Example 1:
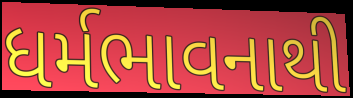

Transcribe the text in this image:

ધર્મભાવનાથી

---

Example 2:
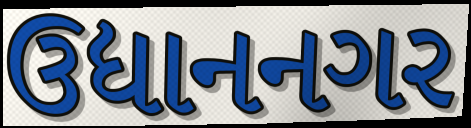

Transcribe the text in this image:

ઉદ્યાનનગર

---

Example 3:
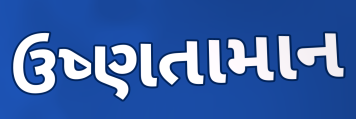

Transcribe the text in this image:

ઉષ્ણતામાન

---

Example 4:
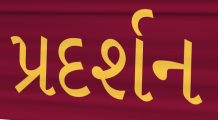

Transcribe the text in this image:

પ્રદર્શન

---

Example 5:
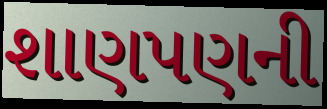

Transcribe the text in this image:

શાણપણની